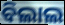
ବିଲାଲ